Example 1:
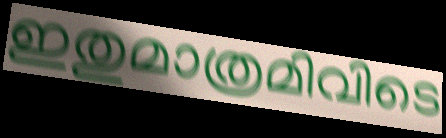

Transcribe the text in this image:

ഇതുമാത്രമിവിടെ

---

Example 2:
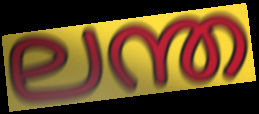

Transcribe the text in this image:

ലന്ത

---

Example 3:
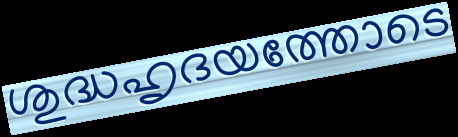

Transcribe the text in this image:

ശുദ്ധഹൃദയത്തോടെ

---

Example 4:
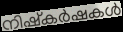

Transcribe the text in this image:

നിഷ്കർഷകൾ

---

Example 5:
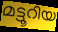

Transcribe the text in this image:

മട്ടൂറിയ